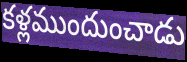
కళ్లముందుంచాడు